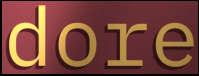
dore